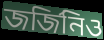
জর্জিনিও